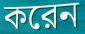
করেন